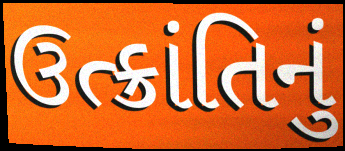
ઉત્ક્રાંતિનું